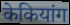
केकियांग